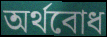
অৰ্থবোধ